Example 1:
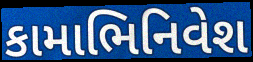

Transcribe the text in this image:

કામાભિનિવેશ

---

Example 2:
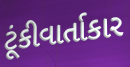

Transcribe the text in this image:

ટૂંકીવાર્તાકાર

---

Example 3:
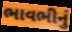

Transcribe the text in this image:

ભાવભીનું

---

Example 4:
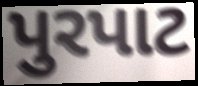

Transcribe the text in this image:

પુરપાટ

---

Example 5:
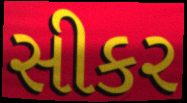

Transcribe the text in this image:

સીકર